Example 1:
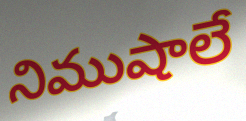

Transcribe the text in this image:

నిముషాలే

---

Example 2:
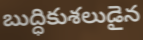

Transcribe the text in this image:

బుద్ధికుశలుడైన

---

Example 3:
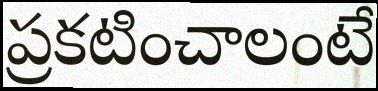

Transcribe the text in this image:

ప్రకటించాలంటే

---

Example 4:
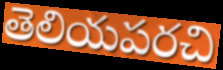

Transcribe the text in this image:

తెలియపరచి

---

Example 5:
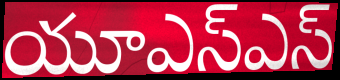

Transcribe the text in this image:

యూఎస్ఎస్